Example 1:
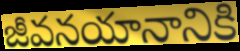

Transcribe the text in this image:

జీవనయానానికి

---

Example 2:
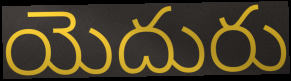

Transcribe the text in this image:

యెదురు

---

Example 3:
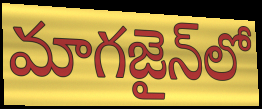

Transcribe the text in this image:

మాగజైన్‌లో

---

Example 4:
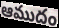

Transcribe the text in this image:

ఆముదం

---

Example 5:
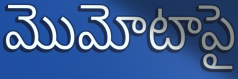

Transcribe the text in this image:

మొమోటాపై